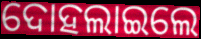
ଦୋହଲାଇଲେ